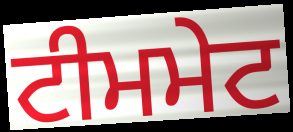
ਟੀਮਮੇਟ